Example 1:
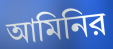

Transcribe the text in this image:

আমিনির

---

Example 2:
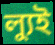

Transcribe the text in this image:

ল্যুই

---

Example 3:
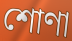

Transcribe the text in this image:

শোণা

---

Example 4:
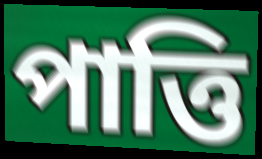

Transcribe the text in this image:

পাত্তি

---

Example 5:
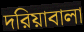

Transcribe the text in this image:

দরিয়াবালা